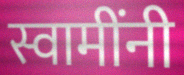
स्वामींनी